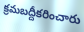
క్రమబద్దీకరించారు